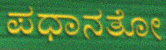
ಪಧಾನತೋ